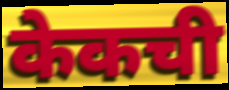
केकची